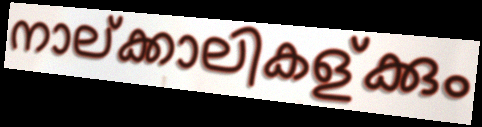
നാല്ക്കാലികള്ക്കും